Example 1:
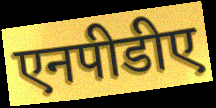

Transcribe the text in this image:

एनपीडीए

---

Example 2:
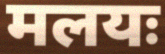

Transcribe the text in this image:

मलयः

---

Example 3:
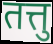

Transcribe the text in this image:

तत्तु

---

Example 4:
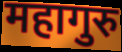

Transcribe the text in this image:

महागुरु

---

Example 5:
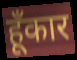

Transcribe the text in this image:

हूँकार